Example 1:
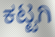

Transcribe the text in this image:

ಕಟ್ಟಗಿ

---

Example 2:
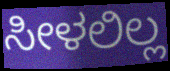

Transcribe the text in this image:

ಸೀಳಲಿಲ್ಲ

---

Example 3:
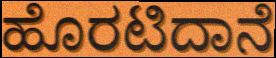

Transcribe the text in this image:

ಹೊರಟಿದಾನೆ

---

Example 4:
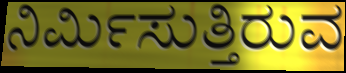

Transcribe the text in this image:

ನಿರ್ಮಿಸುತ್ತಿರುವ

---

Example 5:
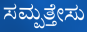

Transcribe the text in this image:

ಸಮ್ಪತ್ತೇಸು